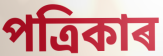
পত্ৰিকাৰ